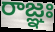
రాజ్ఞః